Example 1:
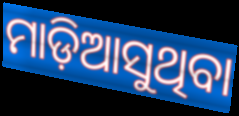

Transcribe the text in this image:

ମାଡ଼ିଆସୁଥିବା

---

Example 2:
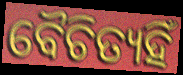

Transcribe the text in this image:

ବୈଚିତ୍ୟହିଁ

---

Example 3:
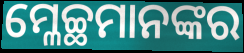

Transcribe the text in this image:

ମ୍ଳେଚ୍ଛମାନଙ୍କର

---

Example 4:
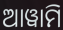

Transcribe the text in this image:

ଆୱାମି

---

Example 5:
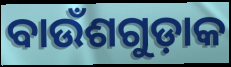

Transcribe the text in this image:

ବାଉଁଶଗୁଡ଼ାକ